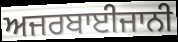
ਅਜਰਬਾਈਜਾਨੀ